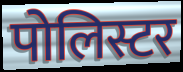
पोलिस्टर